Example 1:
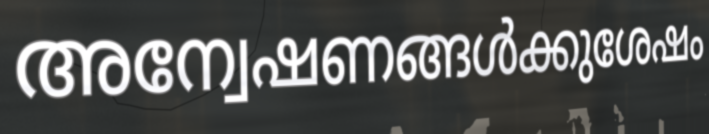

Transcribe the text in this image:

അന്വേഷണങ്ങൾക്കുശേഷം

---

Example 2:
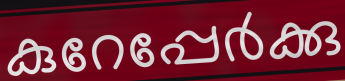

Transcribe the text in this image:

കുറേപ്പേർക്കു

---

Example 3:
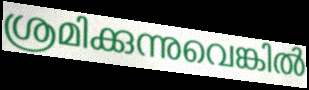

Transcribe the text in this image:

ശ്രമിക്കുന്നുവെങ്കിൽ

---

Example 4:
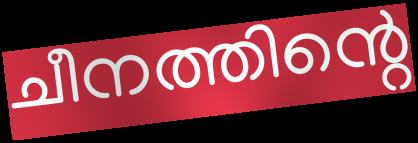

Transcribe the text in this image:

ചീനത്തിന്റെ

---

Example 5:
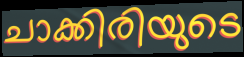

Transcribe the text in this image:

ചാക്കിരിയുടെ